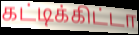
கட்டிக்கிட்டா